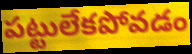
పట్టులేకపోవడం